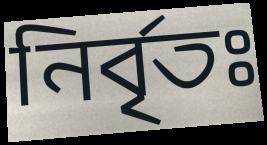
নির্বৃতঃ